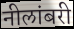
नीलांबरी